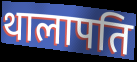
थालापति